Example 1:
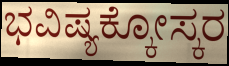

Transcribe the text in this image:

ಭವಿಷ್ಯಕ್ಕೋಸ್ಕರ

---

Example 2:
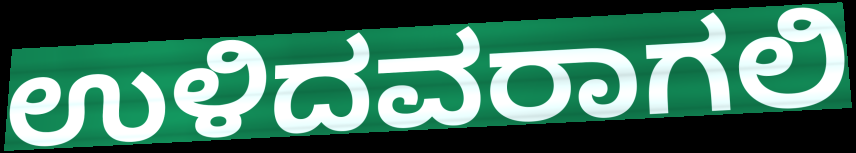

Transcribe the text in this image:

ಉಳಿದವರಾಗಲಿ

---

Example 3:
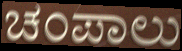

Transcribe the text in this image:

ಚಂಪಾಲು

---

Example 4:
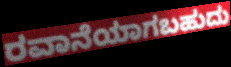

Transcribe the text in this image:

ರವಾನೆಯಾಗಬಹುದು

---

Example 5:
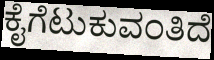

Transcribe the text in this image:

ಕೈಗೆಟುಕುವಂತಿದೆ